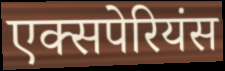
एक्सपेरियंस